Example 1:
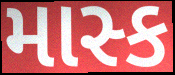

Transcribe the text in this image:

માસ્ક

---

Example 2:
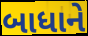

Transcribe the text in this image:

બાધાને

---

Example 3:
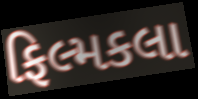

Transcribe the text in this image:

ફિલ્મકલા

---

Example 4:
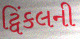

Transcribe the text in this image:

ટ્વિંકલની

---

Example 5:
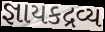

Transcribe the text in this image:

જ્ઞાયકદ્રવ્ય